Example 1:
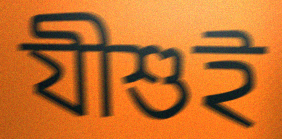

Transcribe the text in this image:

যীশুই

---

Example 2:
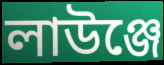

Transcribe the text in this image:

লাউঞ্জে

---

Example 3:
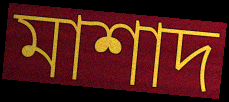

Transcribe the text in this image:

মাশাদ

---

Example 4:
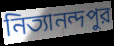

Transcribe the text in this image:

নিত্যানন্দপুর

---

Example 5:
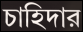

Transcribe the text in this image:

চাহিদার